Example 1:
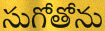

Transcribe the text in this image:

సుగోతోను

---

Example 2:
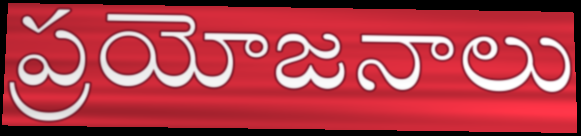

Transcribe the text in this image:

ప్రయోజనాలు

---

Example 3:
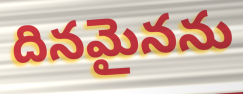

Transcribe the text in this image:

దినమైనను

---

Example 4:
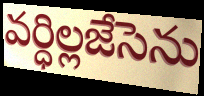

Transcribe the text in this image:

వర్ధిల్లజేసెను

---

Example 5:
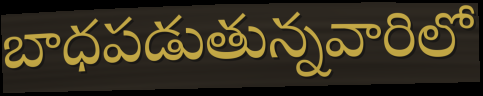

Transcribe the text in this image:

బాధపడుతున్నవారిలో